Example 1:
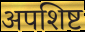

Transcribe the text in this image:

अपशिष्ट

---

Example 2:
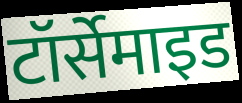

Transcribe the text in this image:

टॉर्सेमाइड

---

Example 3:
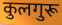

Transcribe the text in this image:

कुलगुरू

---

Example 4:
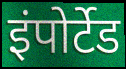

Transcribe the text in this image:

इंपोर्टेड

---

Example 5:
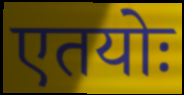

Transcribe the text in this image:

एतयोः